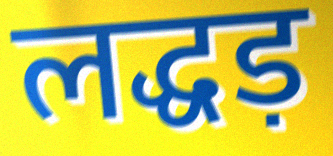
लद्धड़